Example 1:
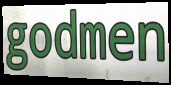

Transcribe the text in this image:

godmen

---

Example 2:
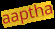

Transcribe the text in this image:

aaptha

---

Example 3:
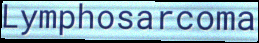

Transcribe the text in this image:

Lymphosarcoma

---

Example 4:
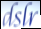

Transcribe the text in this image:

dslr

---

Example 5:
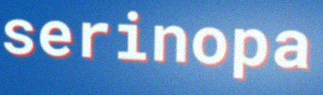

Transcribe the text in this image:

serinopa